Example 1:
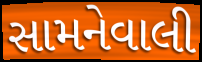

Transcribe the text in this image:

સામનેવાલી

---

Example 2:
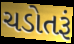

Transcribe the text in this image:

ચડોતરૂં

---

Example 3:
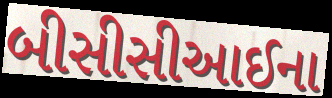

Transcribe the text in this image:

બીસીસીઆઈના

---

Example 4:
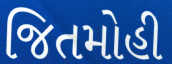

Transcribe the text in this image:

જિતમોહી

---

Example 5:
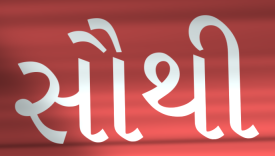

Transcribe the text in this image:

સૌથી